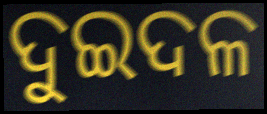
ଦୁଇଦଳ